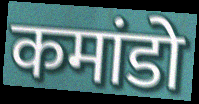
कमांडो